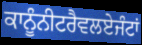
ਕਾਨੂੰਨੀਟਰੈਵਲਏਜੰਟਾਂ